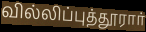
வில்லிப்புத்தூரார்